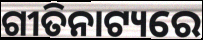
ଗୀତିନାଟ୍ୟରେ